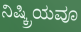
ನಿಷ್ಕ್ರಿಯವೂ